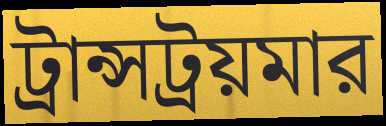
ট্রান্সট্রয়মার